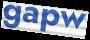
gapw